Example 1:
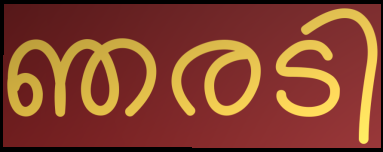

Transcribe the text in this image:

ഞരടി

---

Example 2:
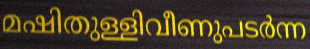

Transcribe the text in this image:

മഷിതുള്ളിവീണുപടർന്ന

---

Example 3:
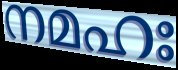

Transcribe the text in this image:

നമഹഃ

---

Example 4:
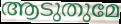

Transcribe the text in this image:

ആടുതുമേ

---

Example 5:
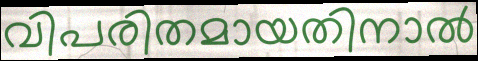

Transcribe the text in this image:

വിപരിതമായതിനാൽ